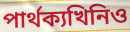
পাৰ্থক্যখিনিও